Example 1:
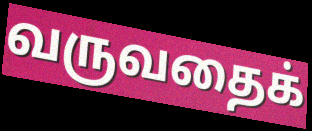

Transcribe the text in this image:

வருவதைக்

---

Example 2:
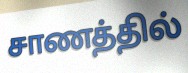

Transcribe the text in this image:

சாணத்தில்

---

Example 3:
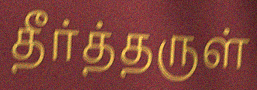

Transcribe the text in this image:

தீர்த்தருள்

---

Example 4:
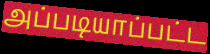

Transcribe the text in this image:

அப்படியாப்பட்ட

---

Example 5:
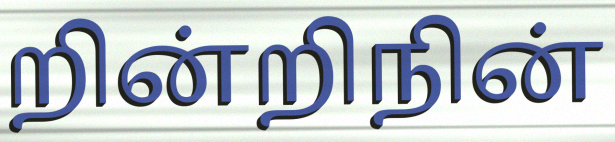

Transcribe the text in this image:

றின்றிநின்